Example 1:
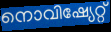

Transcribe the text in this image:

നൊവിഷ്യേറ്റ്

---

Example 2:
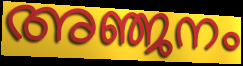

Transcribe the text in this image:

അഞ്ജനം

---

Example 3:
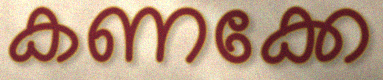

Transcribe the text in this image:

കണക്കേ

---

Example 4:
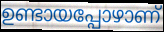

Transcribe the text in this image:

ഉണ്ടായപ്പോഴാണ്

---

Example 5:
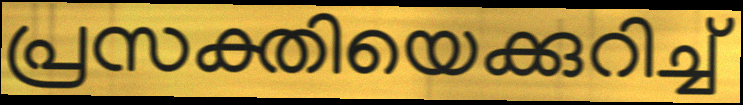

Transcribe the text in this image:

പ്രസക്തിയെക്കുറിച്ച്